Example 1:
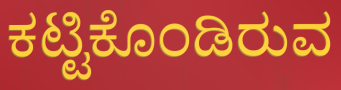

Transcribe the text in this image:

ಕಟ್ಟಿಕೊಂಡಿರುವ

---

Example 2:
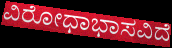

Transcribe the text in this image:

ವಿರೋಧಾಭಾಸವಿದೆ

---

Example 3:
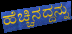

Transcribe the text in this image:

ಹೆಚ್ಚಿನದ್ದನ್ನು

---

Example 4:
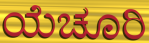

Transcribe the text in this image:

ಯೆಚೂರಿ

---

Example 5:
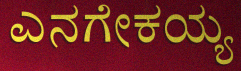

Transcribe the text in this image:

ಎನಗೇಕಯ್ಯ